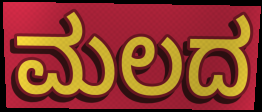
ಮಲದ